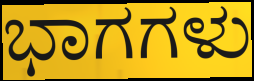
ಭಾಗಗಳು